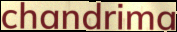
chandrima